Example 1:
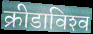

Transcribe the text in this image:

क्रीडाविश्व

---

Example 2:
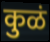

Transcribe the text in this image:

कुळं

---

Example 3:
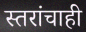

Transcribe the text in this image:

स्तरांचाही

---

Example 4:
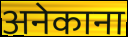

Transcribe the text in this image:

अनेकाना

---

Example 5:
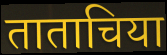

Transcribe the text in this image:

ताताचिया